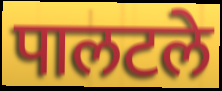
पालटले